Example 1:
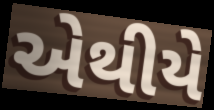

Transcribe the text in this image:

એથીયે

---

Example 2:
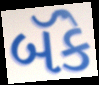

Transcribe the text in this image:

બૅંકે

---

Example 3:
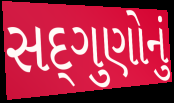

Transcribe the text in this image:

સદ્‌ગુણોનું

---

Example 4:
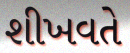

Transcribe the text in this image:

શીખવતે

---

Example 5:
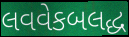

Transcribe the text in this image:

લવવેકબલદ્ધ